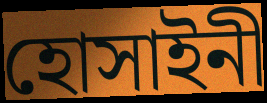
হোসাইনী